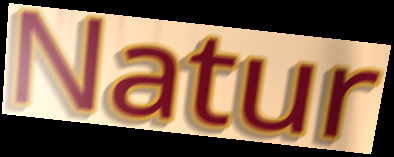
Natur